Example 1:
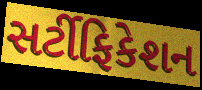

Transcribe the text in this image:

સર્ટીફિકેશન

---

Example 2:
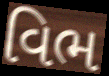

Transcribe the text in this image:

વિભ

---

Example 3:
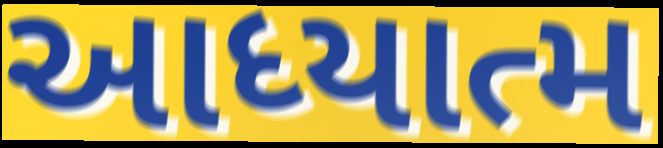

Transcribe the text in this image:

આધ્યાત્મ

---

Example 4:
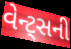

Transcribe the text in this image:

વેન્ટ્સની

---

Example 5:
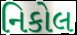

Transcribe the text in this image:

નિકોલ